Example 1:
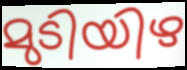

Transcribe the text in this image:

മുടിയിഴ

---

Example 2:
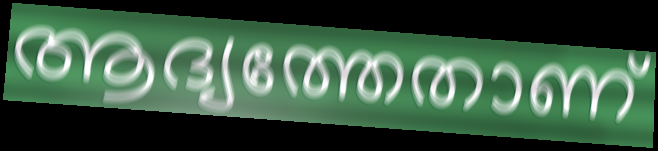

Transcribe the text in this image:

ആദ്യത്തേതാണ്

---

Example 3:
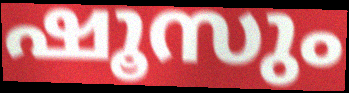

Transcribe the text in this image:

ഷൂസും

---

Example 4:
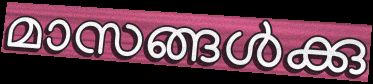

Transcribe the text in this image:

മാസങ്ങൾക്കു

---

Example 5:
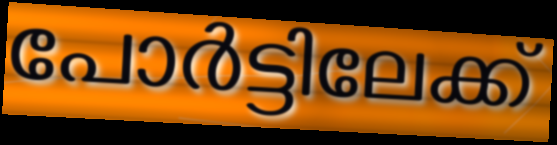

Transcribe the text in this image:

പോർട്ടിലേക്ക്